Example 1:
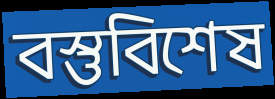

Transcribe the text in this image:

বস্তুবিশেষ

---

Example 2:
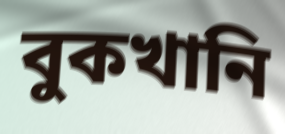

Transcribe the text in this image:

বুকখানি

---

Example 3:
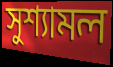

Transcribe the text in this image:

সুশ্যামল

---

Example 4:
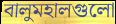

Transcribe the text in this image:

বালুমহালগুলো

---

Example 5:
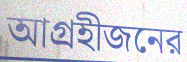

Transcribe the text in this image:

আগ্রহীজনের